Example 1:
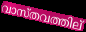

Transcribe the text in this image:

വാസ്തവത്തില്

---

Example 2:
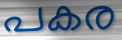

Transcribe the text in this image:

പകര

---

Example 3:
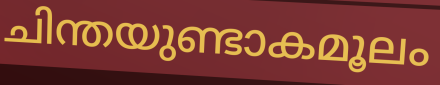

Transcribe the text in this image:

ചിന്തയുണ്ടാകമൂലം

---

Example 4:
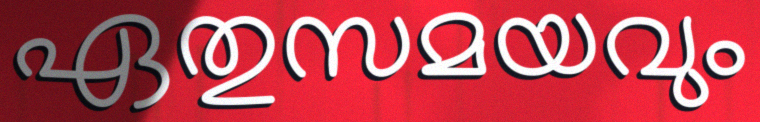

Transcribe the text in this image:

ഏതുസമയവും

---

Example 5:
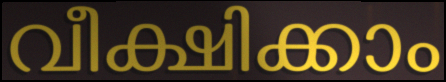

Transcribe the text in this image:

വീക്ഷിക്കാം